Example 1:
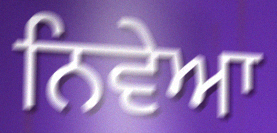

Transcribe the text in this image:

ਨਿਵੇਆ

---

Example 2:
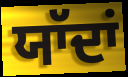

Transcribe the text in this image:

ਯਾੱਦਾਂ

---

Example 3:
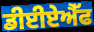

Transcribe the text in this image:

ਡੀਈਏਐੱਫ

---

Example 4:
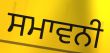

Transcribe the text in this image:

ਸਮਾਵਨੀ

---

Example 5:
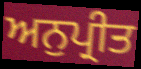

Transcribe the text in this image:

ਅਨੁਪ੍ਰੀਤ